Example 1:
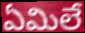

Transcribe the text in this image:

ఏమిలే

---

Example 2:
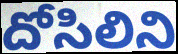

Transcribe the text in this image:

దోసిలిని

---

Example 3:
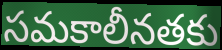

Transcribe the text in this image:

సమకాలీనతకు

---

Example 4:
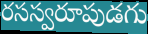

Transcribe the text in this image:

రసస్వరూపుడగు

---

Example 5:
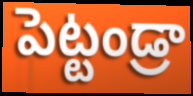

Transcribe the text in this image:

పెట్టండ్రా